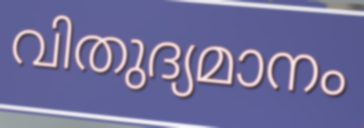
വിതുദ്യമാനം